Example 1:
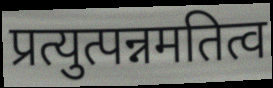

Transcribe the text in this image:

प्रत्युत्पन्नमतित्व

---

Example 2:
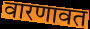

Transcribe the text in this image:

वारणावत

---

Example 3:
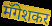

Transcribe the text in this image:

मँगेशकर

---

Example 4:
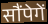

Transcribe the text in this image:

सौंपेगें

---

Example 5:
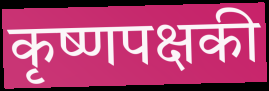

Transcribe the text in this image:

कृष्णपक्षकी